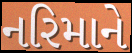
નરિમાને